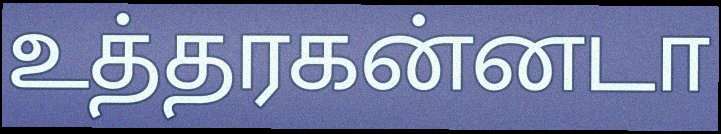
உத்தரகன்னடா